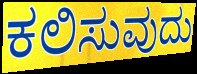
ಕಲಿಸುವುದು